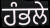
ਹੰਭਲੇ